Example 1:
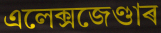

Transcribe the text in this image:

এলেক্সজেণ্ডাৰ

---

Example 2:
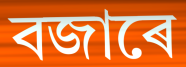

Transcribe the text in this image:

বজাৰে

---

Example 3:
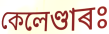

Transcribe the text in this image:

কেলেণ্ডাৰঃ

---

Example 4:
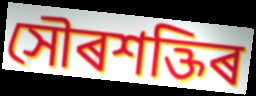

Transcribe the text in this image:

সৌৰশক্তিৰ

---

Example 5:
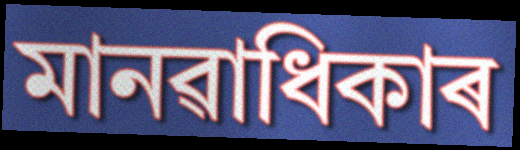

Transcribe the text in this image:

মানৱাধিকাৰ